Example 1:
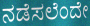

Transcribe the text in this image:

ನಡೆಸಲೆಂದೇ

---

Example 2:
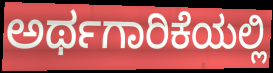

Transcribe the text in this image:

ಅರ್ಥಗಾರಿಕೆಯಲ್ಲಿ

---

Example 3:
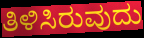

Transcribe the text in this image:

ತಿಳಿಸಿರುವುದು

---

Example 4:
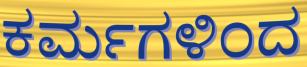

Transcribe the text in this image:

ಕರ್ಮಗಳಿಂದ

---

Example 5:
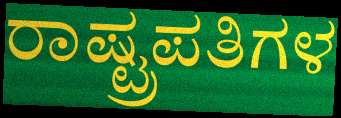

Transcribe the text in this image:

ರಾಷ್ಟ್ರಪತಿಗಳ